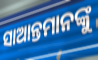
ସାଆନ୍ତମାନଙ୍କୁ